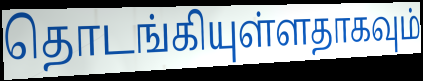
தொடங்கியுள்ளதாகவும்